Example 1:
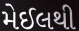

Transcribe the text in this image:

મેઈલથી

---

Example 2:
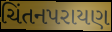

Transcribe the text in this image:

ચિંતનપરાયણ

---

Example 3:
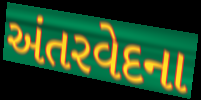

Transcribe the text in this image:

અંતરવેદના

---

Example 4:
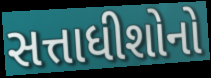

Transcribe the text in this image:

સત્તાધીશોનો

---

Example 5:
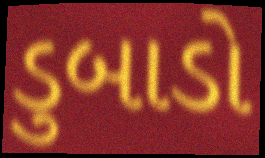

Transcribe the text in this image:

ડુબાડો